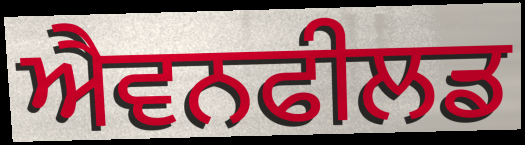
ਐਵਨਫੀਲਡ